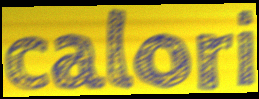
calori